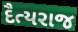
દૈત્યરાજ